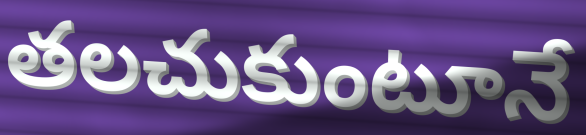
తలచుకుంటూనే